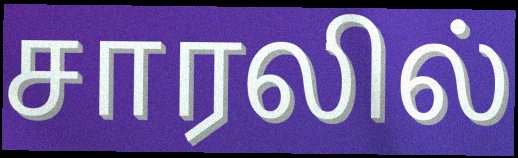
சாரலில்